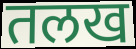
तलख